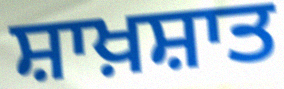
ਸ਼ਾਖ਼ਸ਼ਾਤ